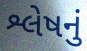
શ્લેષનું